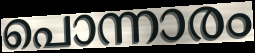
പൊന്നാരം